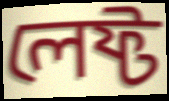
লেফ্ট